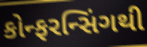
કોન્ફરન્સિંગથી